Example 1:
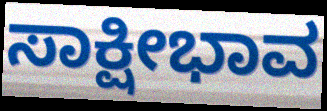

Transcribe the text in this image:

ಸಾಕ್ಷೀಭಾವ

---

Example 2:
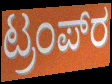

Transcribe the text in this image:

ಟ್ರಂಪ್‍ರ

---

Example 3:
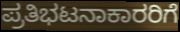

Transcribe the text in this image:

ಪ್ರತಿಭಟನಾಕಾರರಿಗೆ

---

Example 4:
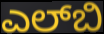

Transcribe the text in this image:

ಎಲ್‌ಬಿ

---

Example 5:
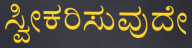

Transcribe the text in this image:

ಸ್ವೀಕರಿಸುವುದೇ